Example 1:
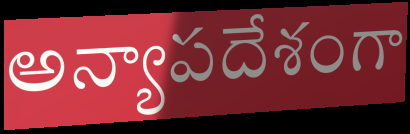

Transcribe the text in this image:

అన్యాపదేశంగా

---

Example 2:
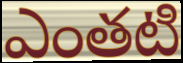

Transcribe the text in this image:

ఎంతటి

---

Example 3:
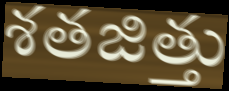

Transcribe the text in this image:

శతజిత్తు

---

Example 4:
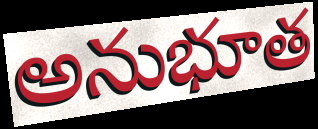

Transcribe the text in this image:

అనుభూత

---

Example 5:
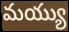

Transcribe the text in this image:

మయ్యు